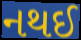
નથઈ